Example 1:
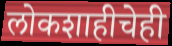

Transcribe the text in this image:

लोकशाहीचेही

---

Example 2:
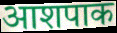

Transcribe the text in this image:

आशपाक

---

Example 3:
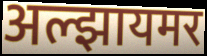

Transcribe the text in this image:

अल्झायमर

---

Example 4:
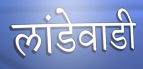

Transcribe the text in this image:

लांडेवाडी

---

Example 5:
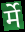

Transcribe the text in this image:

र्मे